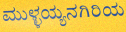
ಮುಳ್ಳಯ್ಯನಗಿರಿಯ